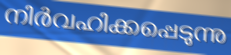
നിർവഹിക്കപ്പെടുന്നു